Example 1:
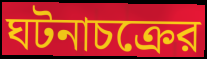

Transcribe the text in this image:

ঘটনাচক্রের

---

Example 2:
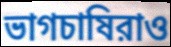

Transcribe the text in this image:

ভাগচাষিরাও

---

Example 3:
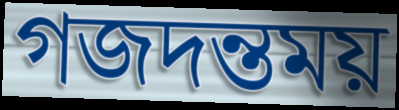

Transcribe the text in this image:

গজদন্তময়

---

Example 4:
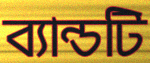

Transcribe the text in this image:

ব্যান্ডটি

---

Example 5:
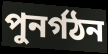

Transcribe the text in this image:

পুনর্গঠন